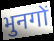
भुनगों